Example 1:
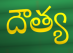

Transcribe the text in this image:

దౌత్య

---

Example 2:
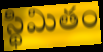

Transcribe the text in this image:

స్థిమితం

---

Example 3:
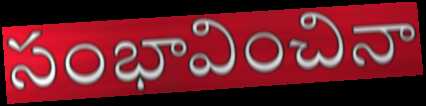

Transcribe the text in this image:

సంభావించినా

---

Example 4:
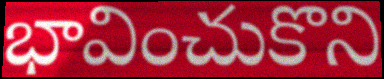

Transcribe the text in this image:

భావించుకొని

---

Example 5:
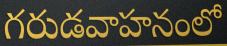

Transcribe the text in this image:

గరుడవాహనంలో